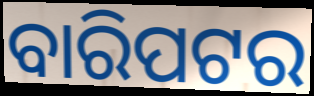
ବାରିପଟର